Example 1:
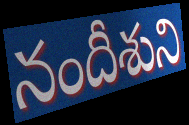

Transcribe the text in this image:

నందీశుని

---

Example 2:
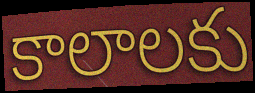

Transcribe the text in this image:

కాలాలకు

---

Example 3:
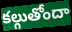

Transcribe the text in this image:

కల్గుతోందా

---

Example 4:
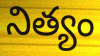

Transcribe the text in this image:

నిత్యం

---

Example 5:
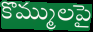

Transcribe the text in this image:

కొమ్ములపై